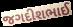
જગદીશભાઈ